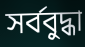
সৰ্ববুদ্ধা